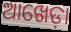
ଆଖେଡ଼ା